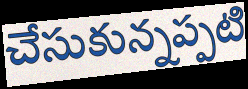
చేసుకున్నప్పటి